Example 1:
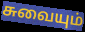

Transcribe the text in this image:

சுவையும்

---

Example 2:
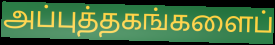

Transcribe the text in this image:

அப்புத்தகங்களைப்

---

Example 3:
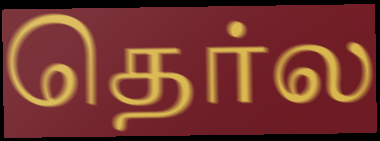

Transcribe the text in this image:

தெர்ல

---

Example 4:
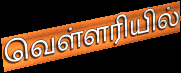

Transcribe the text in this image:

வெள்ளரியில்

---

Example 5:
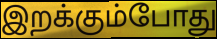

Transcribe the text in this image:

இறக்கும்போது